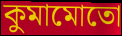
কুমামোতো